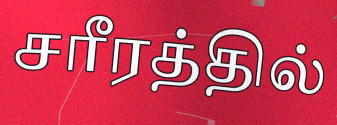
சரீரத்தில்